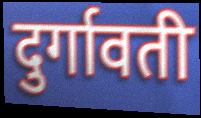
दुर्गावती